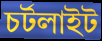
চর্টলাইট